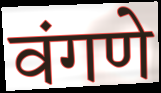
वंगणे